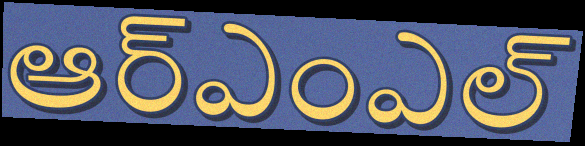
ఆర్ఎంఎల్